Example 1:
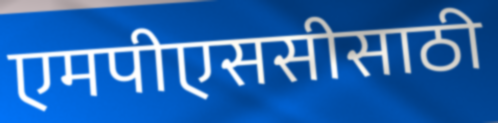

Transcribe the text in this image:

एमपीएससीसाठी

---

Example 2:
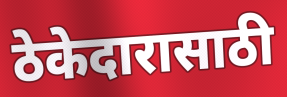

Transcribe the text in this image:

ठेकेदारासाठी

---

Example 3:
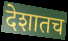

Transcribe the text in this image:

देशातच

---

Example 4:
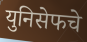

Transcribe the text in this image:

युनिसेफचे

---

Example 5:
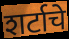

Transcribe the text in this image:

शर्टाचे